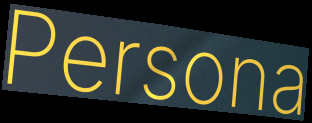
Persona